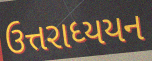
ઉત્તરાધ્યયન